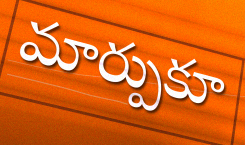
మార్పుకూ